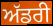
ਅੱਡਰੀ